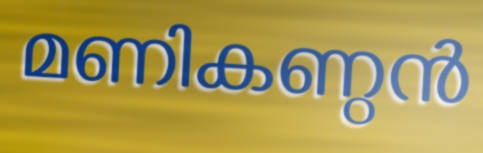
മണികണ്ഠൻ